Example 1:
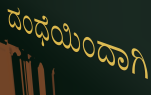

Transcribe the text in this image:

ದಂಧೆಯಿಂದಾಗಿ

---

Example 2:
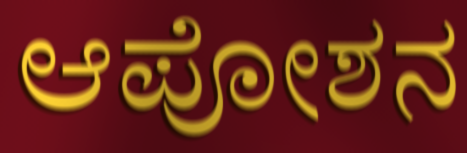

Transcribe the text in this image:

ಆಪೋಶನ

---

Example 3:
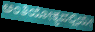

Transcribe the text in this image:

ಅಂತಿಯೋಕ್ಯದಲ್ಲಿಯೇ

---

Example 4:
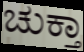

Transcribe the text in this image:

ಚುಕ್ತಾ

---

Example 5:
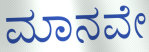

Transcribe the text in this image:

ಮಾನವೇ